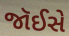
જૉઈસે